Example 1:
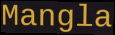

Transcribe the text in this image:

Mangla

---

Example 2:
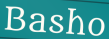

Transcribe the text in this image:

Basho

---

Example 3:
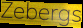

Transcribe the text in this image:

Zebergs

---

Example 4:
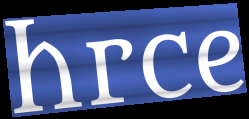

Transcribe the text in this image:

hrce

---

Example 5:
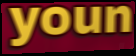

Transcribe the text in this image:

youn